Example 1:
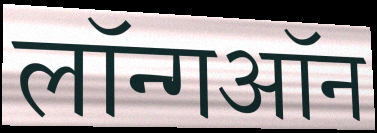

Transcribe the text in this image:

लॉन्गऑन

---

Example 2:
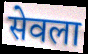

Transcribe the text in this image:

सेवला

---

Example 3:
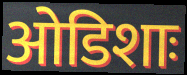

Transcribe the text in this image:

ओडिशाः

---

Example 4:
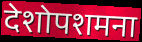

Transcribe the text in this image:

देशोपशमना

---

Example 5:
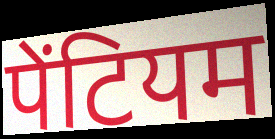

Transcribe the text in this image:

पेंटियम